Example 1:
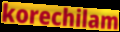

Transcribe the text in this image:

korechilam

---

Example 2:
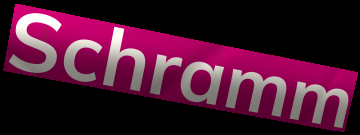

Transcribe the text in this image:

Schramm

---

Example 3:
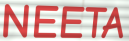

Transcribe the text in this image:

NEETA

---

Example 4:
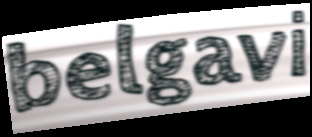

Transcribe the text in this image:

belgavi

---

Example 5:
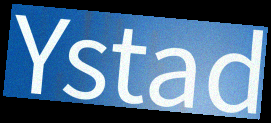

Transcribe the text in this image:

Ystad